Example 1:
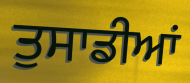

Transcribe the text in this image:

ਤੁਸਾਡੀਆਂ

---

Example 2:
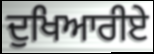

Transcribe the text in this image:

ਦੁਖਿਆਰੀਏ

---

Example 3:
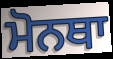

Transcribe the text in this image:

ਮੋਨਥਾ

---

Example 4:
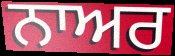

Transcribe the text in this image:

ਨਾਅਰ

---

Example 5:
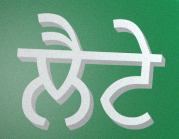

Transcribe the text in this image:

ਲੈਟੇ